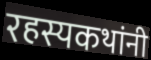
रहस्यकथांनी